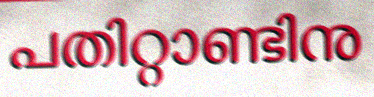
പതിറ്റാണ്ടിനു